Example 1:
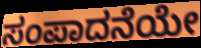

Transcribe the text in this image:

ಸಂಪಾದನೆಯೇ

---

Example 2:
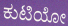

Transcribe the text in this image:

ಕುಟಿಯೋ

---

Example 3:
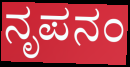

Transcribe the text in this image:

ನೃಪನಂ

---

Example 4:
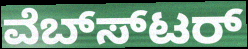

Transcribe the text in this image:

ವೆಬ್ಸ್‍ಟರ್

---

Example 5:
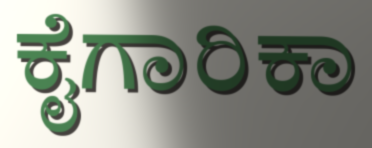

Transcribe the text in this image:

ಕೈಗಾರಿಕಾ